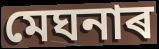
মেঘনাৰ